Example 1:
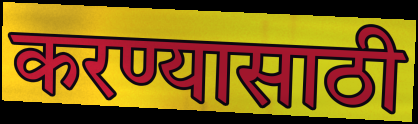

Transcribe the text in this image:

करण्‍यासाठी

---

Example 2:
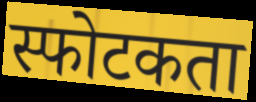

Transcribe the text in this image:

स्फोटकता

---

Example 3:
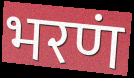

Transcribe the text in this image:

भरणं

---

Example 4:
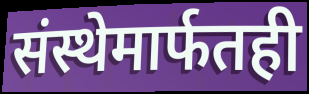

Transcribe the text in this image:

संस्थेमार्फतही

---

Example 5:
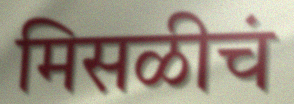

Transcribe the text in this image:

मिसळीचं